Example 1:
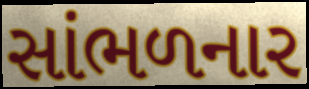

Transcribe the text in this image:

સાંભળનાર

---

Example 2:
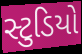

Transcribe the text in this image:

સ્ટુડિયો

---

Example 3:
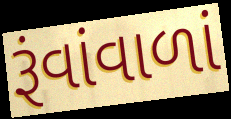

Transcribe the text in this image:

રૂંવાંવાળાં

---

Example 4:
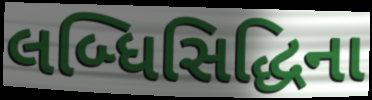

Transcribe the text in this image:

લબ્ધિસિદ્ધિના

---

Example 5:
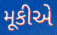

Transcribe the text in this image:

મૂકીએ